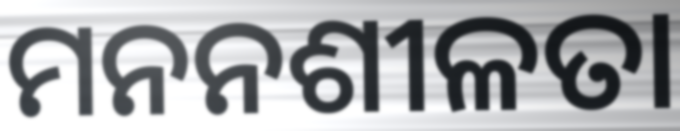
ମନନଶୀଳତା